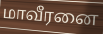
மாவீரனை